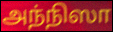
அந்நிஸா